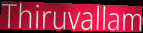
Thiruvallam